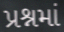
પ્રશ્નમાં